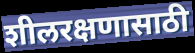
शीलरक्षणासाठी